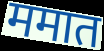
ममात